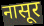
नासूर